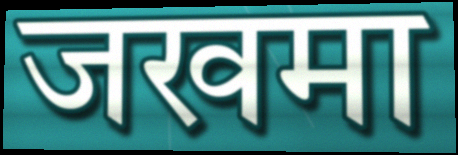
जखमा